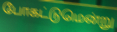
போகட்டுமென்று